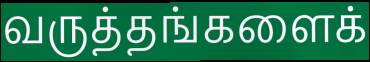
வருத்தங்களைக்